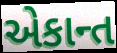
એકાન્ત